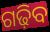
ଗଢ଼ିବ